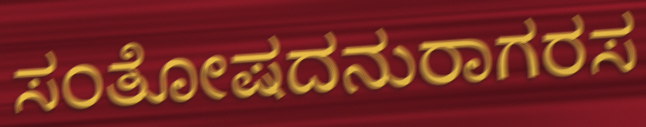
ಸಂತೋಷದನುರಾಗರಸ